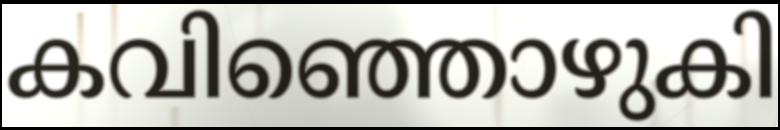
കവിഞ്ഞൊഴുകി